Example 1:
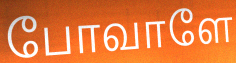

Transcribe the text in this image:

போவாளே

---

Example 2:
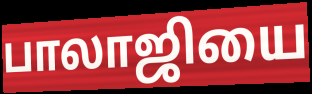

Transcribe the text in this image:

பாலாஜியை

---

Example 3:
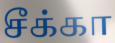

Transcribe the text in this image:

சீக்கா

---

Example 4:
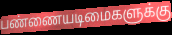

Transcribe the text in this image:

பண்ணையடிமைகளுக்கு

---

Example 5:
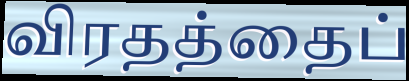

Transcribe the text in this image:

விரதத்தைப்